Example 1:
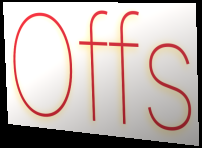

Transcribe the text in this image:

Offs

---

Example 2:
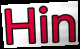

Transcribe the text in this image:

Hin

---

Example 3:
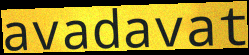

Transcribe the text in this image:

avadavat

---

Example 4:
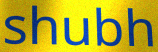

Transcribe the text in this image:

shubh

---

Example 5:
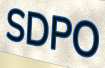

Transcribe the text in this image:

SDPO